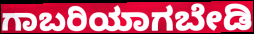
ಗಾಬರಿಯಾಗಬೇಡಿ